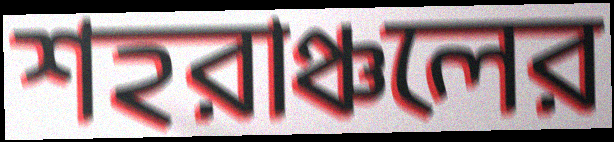
শহরাঞ্চলের